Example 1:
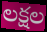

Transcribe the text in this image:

లక్షల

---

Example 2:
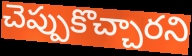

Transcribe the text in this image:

చెప్పుకొచ్చారని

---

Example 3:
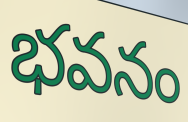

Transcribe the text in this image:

భవనం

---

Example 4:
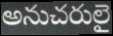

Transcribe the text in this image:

అనుచరులై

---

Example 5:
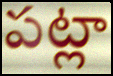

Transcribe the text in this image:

పట్లా